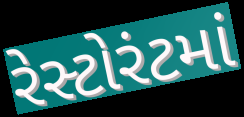
રેસ્ટોરંટમાં